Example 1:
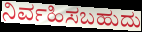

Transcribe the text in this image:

ನಿರ್ವಹಿಸಬಹುದು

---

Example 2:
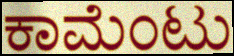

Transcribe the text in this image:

ಕಾಮೆಂಟು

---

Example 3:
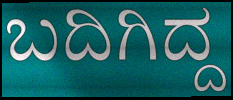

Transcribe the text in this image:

ಬದಿಗಿದ್ದ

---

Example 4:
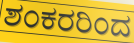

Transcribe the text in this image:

ಶಂಕರರಿಂದ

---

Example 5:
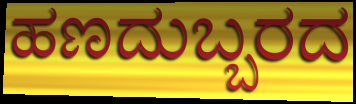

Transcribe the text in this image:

ಹಣದುಬ್ಬರದ